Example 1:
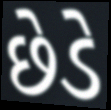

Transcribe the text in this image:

છેડે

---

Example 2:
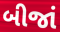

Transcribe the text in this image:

બીજાં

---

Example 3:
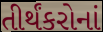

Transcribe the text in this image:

તીર્થંકરોનાં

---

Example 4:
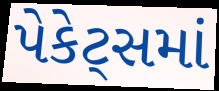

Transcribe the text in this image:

પેકેટ્સમાં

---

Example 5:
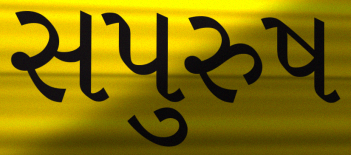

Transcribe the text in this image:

સપુરુષ